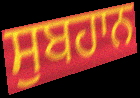
ਸੁਬਹਾਨ